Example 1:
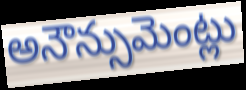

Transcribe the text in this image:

అనౌన్సుమెంట్లు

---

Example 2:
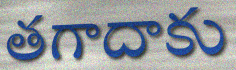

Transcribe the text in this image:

తగాదాకు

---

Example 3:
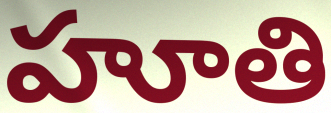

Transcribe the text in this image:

హూతి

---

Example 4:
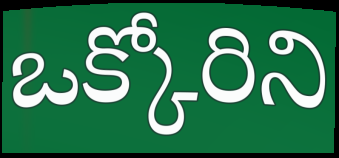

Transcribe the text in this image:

ఒక్కోరిని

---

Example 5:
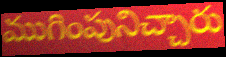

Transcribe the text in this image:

ముగింపునిచ్చారు